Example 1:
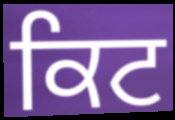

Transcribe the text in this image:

ਕਿਟ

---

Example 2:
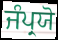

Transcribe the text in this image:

ਜੰਪ੍ਰਯੋ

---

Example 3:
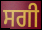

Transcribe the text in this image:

ਸਗੀ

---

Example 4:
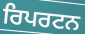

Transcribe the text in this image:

ਰਿਪਰਟਨ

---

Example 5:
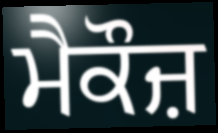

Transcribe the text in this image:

ਮੈਕੌਜ਼